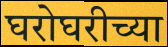
घरोघरीच्या